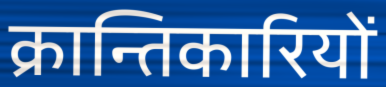
क्रान्तिकारियों